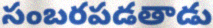
సంబరపడతాడు